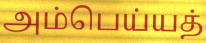
அம்பெய்யத்